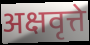
अक्षवृत्ते